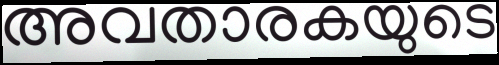
അവതാരകയുടെ